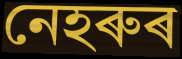
নেহৰুৰ